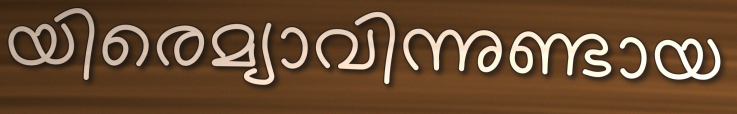
യിരെമ്യാവിന്നുണ്ടായ